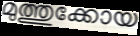
മുത്തുക്കോയ